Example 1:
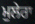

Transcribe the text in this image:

ਮੁਲੇਰਾ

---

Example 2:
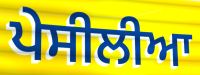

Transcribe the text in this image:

ਪੇਸੀਲੀਆ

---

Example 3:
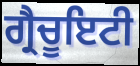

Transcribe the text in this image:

ਗ੍ਰੈਚੂਇਟੀ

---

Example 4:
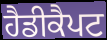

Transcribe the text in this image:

ਹੈਡੀਕੈਪਟ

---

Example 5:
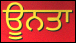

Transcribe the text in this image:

ਊਨਤਾ